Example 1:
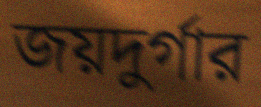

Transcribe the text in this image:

জয়দুর্গার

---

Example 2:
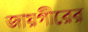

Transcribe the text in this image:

জায়গীরের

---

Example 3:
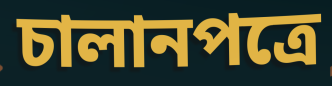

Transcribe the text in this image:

চালানপত্রে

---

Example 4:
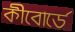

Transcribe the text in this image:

কীবোর্ডে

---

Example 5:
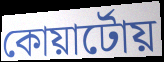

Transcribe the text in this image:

কোয়ার্টোয়